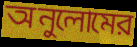
অনুলোমের